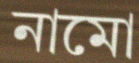
নামো